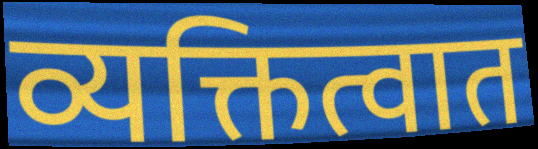
व्यक्तित्वात